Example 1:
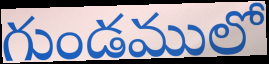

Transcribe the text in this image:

గుండములో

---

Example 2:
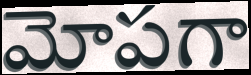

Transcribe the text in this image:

మోపగా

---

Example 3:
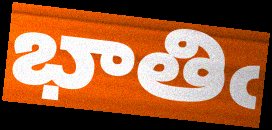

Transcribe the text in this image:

భాతిఁ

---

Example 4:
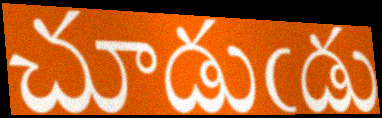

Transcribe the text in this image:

చూడుఁడు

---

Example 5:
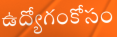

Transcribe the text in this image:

ఉద్యోగంకోసం